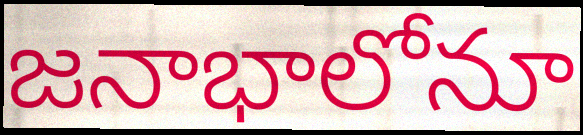
జనాభాలోనూ